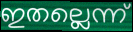
ഇതല്ലെന്ന്